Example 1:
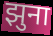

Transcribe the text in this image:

झुना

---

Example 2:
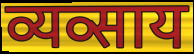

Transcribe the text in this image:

व्यव्साय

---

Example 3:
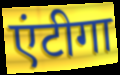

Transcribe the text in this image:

एंटीगा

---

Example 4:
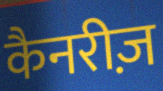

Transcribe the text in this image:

कैनरीज़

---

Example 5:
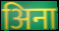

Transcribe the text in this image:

अिना